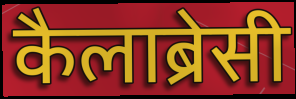
कैलाब्रेसी